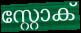
സ്റ്റോക്